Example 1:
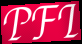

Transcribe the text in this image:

PFI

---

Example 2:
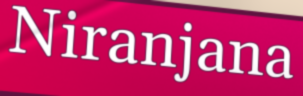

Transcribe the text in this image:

Niranjana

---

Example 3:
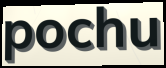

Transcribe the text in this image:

pochu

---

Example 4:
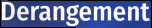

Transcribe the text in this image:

Derangement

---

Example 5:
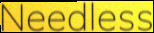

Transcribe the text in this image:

Needless